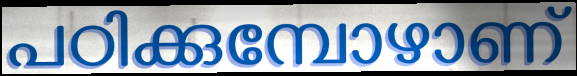
പഠിക്കുമ്പോഴാണ്